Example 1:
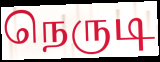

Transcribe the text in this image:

நெருடி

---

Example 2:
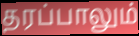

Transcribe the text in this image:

தரப்பாலும்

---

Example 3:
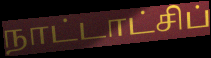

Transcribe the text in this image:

நாட்டாட்சிப்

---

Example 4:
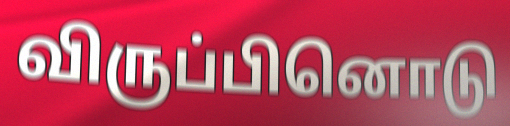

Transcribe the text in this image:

விருப்பினொடு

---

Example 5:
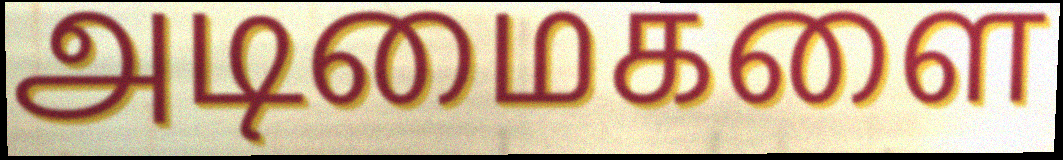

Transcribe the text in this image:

அடிமைகளை